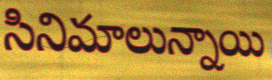
సినిమాలున్నాయి